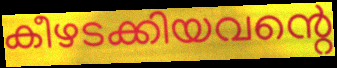
കീഴടക്കിയവന്റെ